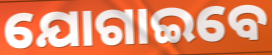
ଯୋଗାଇବେ